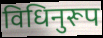
विधिनुरूप